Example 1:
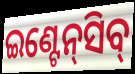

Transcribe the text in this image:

ଇଣ୍ଟେନ୍‍ସିବ୍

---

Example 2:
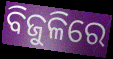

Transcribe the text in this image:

ବିଜୁଳିରେ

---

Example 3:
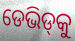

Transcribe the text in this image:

ଡେଭିଡ୍‍କୁ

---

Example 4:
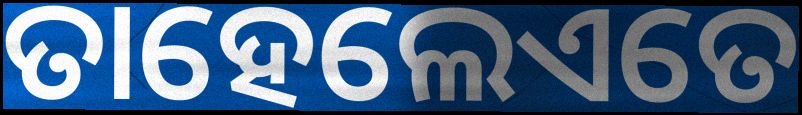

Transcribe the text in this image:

ତାହେଲେଏତେ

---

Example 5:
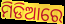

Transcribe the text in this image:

ମିଡିଆରେ